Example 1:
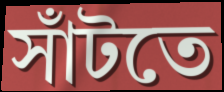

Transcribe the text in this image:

সাঁটতে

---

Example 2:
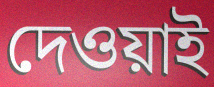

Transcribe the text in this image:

দেওয়াই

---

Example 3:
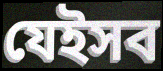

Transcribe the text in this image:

যেইসব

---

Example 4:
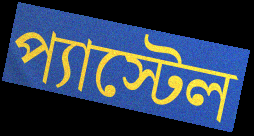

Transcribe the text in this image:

প্যাস্টেল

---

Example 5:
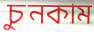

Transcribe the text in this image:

চুনকাম